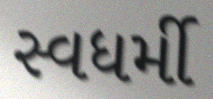
સ્વધર્મી